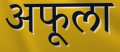
अफूला